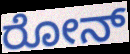
ರೋನ್